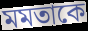
মমতাকে